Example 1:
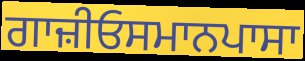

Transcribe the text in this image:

ਗਾਜ਼ੀਓਸਮਾਨਪਾਸਾ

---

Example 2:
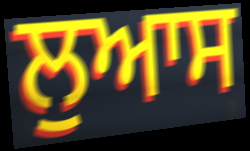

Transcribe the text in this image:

ਲੁਆਸ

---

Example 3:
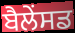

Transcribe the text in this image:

ਬੈਲੇਂਸਡ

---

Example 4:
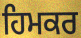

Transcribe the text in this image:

ਹਿਮਕਰ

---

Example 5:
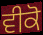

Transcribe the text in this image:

ਵੀਕੋ